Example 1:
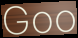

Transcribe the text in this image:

Goo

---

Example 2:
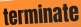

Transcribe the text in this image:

terminate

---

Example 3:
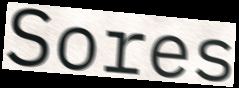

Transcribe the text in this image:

Sores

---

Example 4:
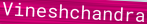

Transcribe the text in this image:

Vineshchandra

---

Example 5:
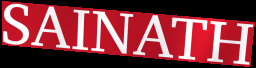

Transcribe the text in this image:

SAINATH